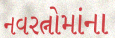
નવરત્નોમાંના